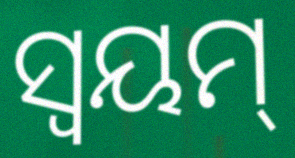
ସ୍ୱୟମ୍